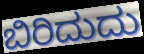
ಬಿರಿದುದು